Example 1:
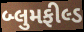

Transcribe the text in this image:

બ્લુમફીલ્ડ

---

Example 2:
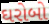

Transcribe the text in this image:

ઘરોબો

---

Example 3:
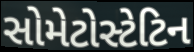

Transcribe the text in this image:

સોમેટોસ્ટેટિન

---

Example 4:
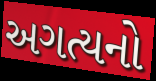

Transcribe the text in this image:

અગત્યનો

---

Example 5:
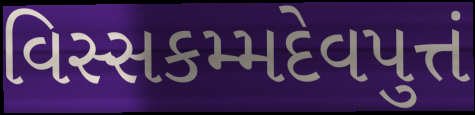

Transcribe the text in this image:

વિસ્સકમ્મદેવપુત્તં